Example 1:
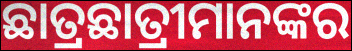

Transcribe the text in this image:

ଛାତ୍ରଛାତ୍ରୀମାନଙ୍କର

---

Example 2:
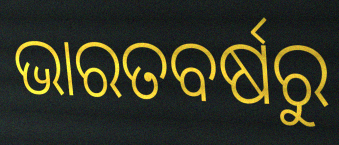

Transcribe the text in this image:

ଭାରତବର୍ଷରୁ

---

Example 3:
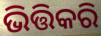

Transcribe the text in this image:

ଭିତ୍ତିକରି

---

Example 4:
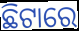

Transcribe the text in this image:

ଛିଟାରେ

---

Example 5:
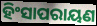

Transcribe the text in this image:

ହିଂସାପରାୟଣ